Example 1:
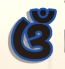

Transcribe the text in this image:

ଓଁ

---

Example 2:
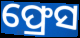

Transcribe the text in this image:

ଫ୍ରେସ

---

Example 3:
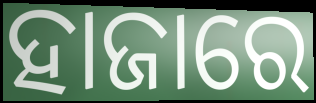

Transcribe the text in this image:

ହାଜାରେ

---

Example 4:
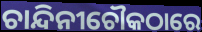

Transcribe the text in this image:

ଚାନ୍ଦିନୀଚୌକଠାରେ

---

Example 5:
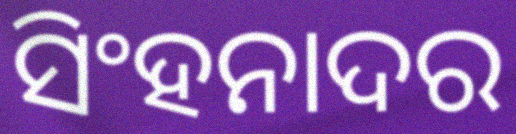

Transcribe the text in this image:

ସିଂହନାଦର